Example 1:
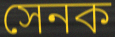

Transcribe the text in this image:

সেনক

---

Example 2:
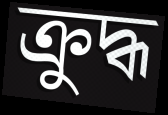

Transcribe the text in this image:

ক্ৰুদ্ধ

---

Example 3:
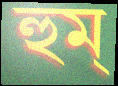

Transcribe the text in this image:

হুম্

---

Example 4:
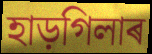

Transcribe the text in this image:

হাড়গিলাৰ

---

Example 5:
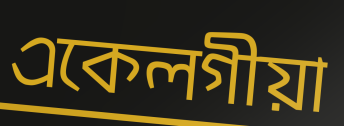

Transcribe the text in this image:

একেলগীয়া